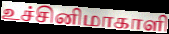
உச்சினிமாகாளி